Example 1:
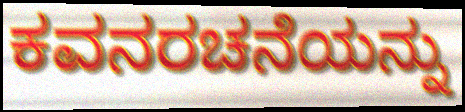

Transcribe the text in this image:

ಕವನರಚನೆಯನ್ನು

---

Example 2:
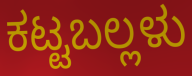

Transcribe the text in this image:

ಕಟ್ಟಬಲ್ಲಳು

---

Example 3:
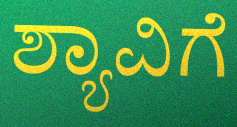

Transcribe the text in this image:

ಶ್ಯಾವಿಗೆ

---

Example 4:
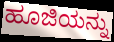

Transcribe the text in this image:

ಹೂಜಿಯನ್ನು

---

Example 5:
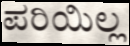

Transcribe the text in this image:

ಪರಿಯಿಲ್ಲ